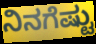
ನಿನಗೆಷ್ಟು